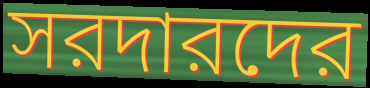
সরদারদের